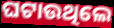
ଘଟାଉଥିଲେ